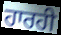
ਹਾਰਹੀ